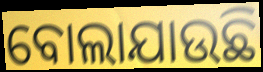
ବୋଲାଯାଉଛି